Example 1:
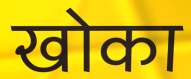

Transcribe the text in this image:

खोका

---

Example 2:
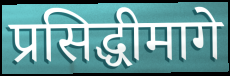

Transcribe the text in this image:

प्रसिद्धीमागे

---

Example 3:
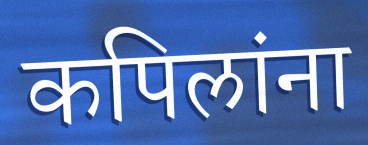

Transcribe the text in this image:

कपिलांना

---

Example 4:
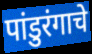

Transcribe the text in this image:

पांडुरंगाचे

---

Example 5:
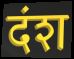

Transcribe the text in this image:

दंश